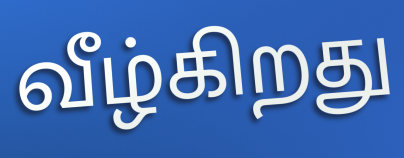
வீழ்கிறது